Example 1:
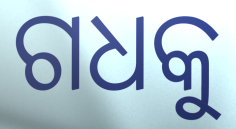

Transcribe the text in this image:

ଗଧକୁ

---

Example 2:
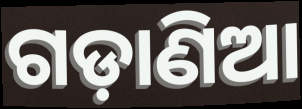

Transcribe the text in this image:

ଗଡ଼ାଣିଆ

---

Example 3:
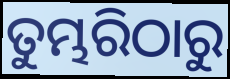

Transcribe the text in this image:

ତୁମ୍ଭରିଠାରୁ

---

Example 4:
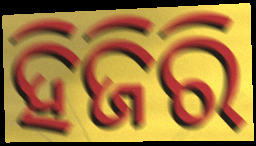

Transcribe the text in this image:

ହିଜିରି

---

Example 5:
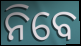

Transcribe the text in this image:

ନିବେ